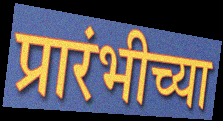
प्रारंभीच्या